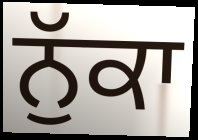
ਨੁੱਕਾ